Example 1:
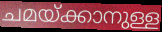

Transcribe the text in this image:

ചമയ്ക്കാനുള്ള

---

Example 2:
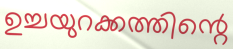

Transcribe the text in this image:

ഉച്ചയുറക്കത്തിന്റെ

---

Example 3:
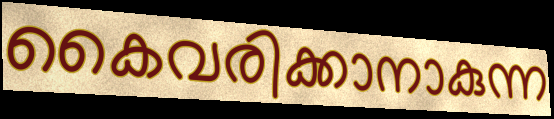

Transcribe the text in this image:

കൈവരിക്കാനാകുന്ന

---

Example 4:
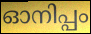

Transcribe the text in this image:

ഓനിപ്പം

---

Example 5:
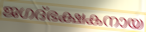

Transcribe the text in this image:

ജഗദ്ഭക്ഷകനായ